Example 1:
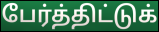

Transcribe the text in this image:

பேர்த்திட்டுக்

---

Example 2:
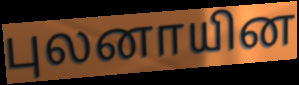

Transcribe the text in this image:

புலனாயின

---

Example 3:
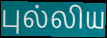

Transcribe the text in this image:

புல்லிய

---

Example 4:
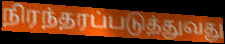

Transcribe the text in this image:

நிரந்தரப்படுத்துவது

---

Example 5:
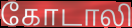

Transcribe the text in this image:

கோடாலி